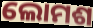
ଲୋମଶ